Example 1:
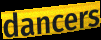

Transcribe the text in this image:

dancers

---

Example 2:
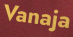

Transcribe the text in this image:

Vanaja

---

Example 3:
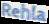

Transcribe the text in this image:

Rehla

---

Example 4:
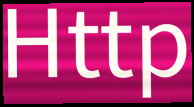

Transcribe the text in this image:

Http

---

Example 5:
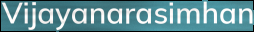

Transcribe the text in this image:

Vijayanarasimhan